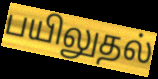
பயிலுதல்